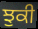
ਝੁਕੀ